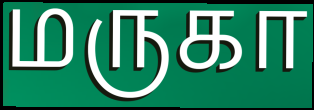
மருகா